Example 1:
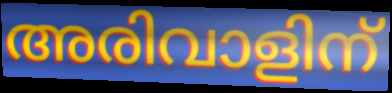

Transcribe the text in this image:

അരിവാളിന്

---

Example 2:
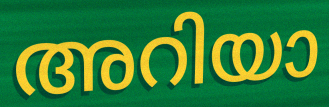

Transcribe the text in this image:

അറിയാ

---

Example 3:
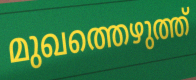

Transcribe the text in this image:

മുഖത്തെഴുത്ത്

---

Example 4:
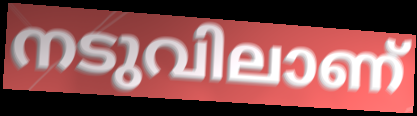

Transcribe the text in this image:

നടുവിലാണ്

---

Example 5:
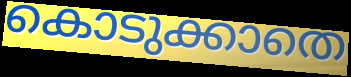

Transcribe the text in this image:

കൊടുക്കാതെ